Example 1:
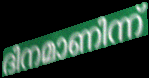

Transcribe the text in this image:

ദിനമാണിന്ന്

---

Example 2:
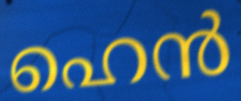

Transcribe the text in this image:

ഹെൻ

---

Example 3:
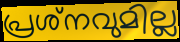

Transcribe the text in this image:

പ്രശ്‌നവുമില്ല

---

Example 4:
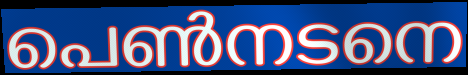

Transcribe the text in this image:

പെൺനടനെ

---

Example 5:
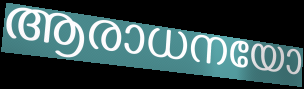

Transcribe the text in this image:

ആരാധനയോ